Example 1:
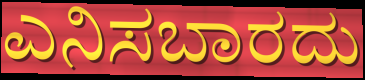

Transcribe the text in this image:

ಎನಿಸಬಾರದು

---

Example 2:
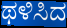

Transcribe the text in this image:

ಥಳಿಸಿದ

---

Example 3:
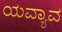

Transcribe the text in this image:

ಯವ್ಯಾವ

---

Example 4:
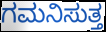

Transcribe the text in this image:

ಗಮನಿಸುತ್ತ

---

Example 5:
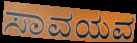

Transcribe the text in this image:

ಸಾವಯವ